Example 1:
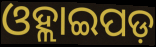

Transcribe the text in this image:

ଓହ୍ଲାଇପଡ଼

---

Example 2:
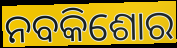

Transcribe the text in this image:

ନବକିଶୋର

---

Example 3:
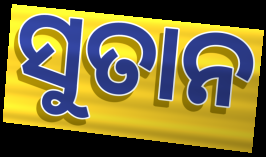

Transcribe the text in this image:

ସୁତାନ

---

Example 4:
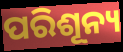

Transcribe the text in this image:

ପରିଶୂନ୍ୟ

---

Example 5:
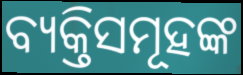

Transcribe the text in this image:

ବ୍ୟକ୍ତିସମୂହଙ୍କ